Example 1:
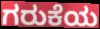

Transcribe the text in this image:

ಗರುಕೆಯ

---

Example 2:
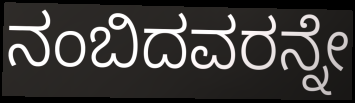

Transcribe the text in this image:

ನಂಬಿದವರನ್ನೇ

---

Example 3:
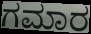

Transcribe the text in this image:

ಗಮಾರ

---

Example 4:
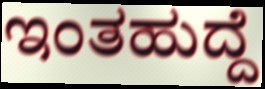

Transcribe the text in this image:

ಇಂತಹುದ್ದೆ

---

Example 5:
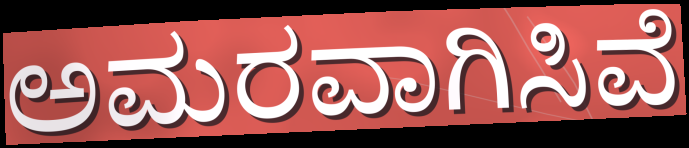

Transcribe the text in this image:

ಅಮರವಾಗಿಸಿವೆ